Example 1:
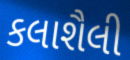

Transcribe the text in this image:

કલાશૈલી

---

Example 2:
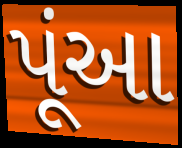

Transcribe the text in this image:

પૂંઆ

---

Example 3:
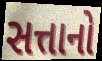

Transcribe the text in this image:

સત્તાનો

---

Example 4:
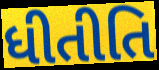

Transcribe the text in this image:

ધીતીતિ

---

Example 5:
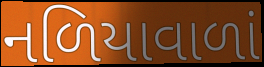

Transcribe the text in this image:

નળિયાવાળાં